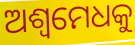
ଅଶ୍ୱମେଧକୁ